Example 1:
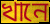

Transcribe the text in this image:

খানে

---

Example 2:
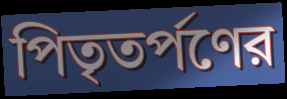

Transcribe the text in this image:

পিতৃতর্পণের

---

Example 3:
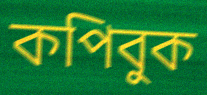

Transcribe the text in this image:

কপিবুক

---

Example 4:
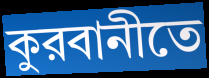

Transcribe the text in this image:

কুরবানীতে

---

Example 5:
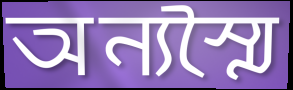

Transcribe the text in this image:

অন্যস্মৈ